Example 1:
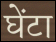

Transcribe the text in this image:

घेंटा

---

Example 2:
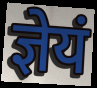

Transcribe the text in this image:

ज्ञेयं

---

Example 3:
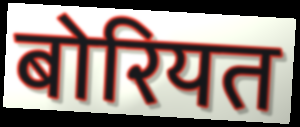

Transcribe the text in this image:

बोरियत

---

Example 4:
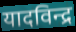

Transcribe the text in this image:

यादविन्द्र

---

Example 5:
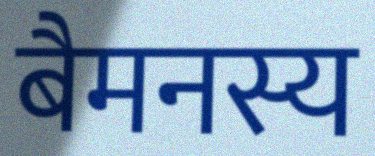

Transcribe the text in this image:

बैमनस्य